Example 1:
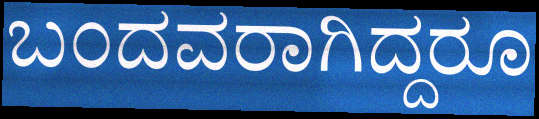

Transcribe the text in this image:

ಬಂದವರಾಗಿದ್ದರೂ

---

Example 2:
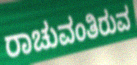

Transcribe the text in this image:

ರಾಚುವಂತಿರುವ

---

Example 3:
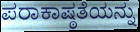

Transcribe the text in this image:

ಪರಾಕಾಷ್ಠತೆಯನ್ನು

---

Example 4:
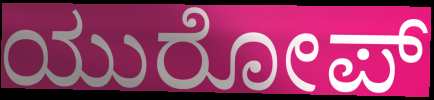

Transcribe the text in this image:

ಯುರೋಪ್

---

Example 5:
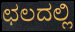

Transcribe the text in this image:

ಛಲದಲ್ಲಿ